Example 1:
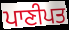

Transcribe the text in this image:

ਪਾਣੀਪਤ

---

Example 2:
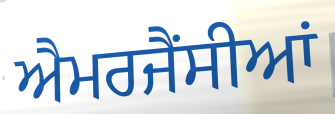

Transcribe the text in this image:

ਐਮਰਜੈਂਸੀਆਂ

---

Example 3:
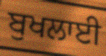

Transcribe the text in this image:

ਬੁਖਲਾਈ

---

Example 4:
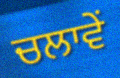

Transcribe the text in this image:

ਚਲਾਵੇਂ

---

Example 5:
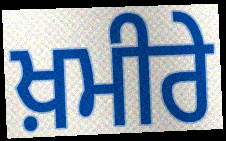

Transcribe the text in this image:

ਖ਼ਮੀਰੇ